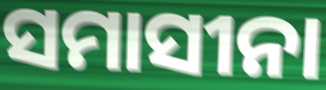
ସମାସୀନା